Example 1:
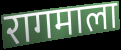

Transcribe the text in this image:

रागमाला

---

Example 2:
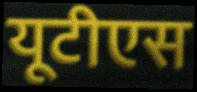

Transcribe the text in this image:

यूटीएस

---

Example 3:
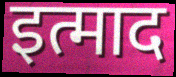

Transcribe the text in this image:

इत्माद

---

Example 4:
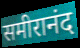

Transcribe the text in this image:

समीरानंद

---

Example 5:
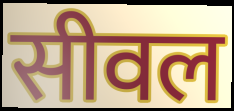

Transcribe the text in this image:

सीवल